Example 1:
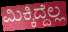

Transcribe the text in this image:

ಮಿಕ್ಕಿದ್ದೆಲ್ಲ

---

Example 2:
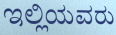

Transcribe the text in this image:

ಇಲ್ಲಿಯವರು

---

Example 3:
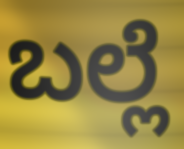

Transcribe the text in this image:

ಬಲ್ಲೆ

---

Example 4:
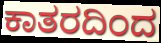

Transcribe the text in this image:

ಕಾತರದಿಂದ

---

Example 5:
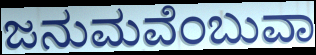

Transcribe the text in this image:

ಜನುಮವೆಂಬುವಾ